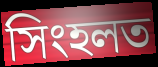
সিংহলত